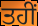
ਤਹੀਂ